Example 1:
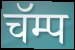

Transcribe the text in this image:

चॅम्प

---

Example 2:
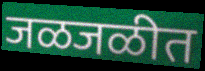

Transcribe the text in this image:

जळजळीत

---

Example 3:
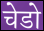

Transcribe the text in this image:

चेडो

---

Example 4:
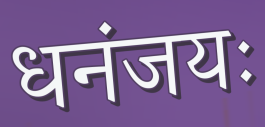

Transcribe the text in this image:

धनंजयः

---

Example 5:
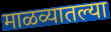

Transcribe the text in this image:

माळव्यातल्या